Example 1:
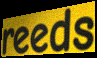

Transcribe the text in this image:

reeds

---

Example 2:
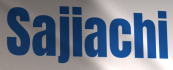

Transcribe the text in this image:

Sajiachi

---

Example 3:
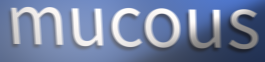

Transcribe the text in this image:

mucous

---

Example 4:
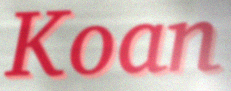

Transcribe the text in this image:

Koan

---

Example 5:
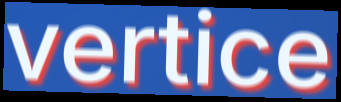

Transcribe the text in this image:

vertice